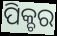
ପିକ୍ଚର